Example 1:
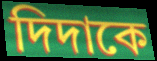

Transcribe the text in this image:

দিদাকে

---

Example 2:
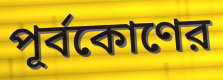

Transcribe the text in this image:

পূর্বকোণের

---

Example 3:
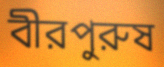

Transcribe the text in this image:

বীরপুরুষ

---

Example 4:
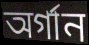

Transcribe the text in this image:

অর্গান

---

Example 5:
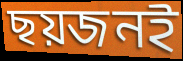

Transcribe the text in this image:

ছয়জনই